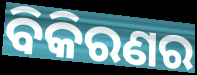
ବିକିରଣର